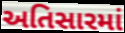
અતિસારમાં